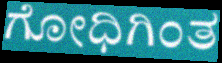
ಗೋಧಿಗಿಂತ